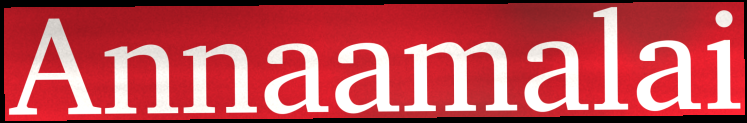
Annaamalai